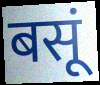
बसूं